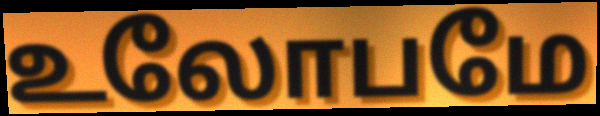
உலோபமே